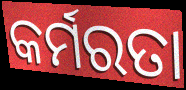
କର୍ମରତା